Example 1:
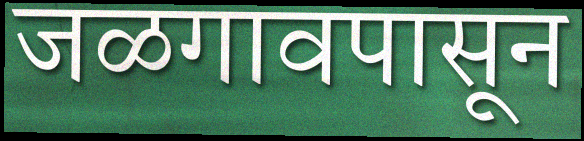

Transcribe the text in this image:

जळगावपासून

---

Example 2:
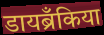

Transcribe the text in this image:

डायब्रँकिया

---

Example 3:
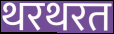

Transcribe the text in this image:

थरथरत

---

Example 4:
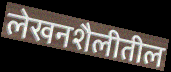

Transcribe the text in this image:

लेखनशैलीतील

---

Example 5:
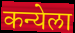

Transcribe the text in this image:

कन्येला